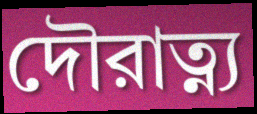
দৌরাত্ন্য